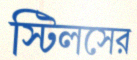
স্টিলসের